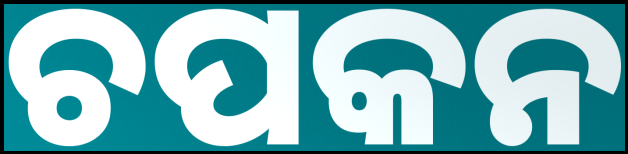
ଚପକନ